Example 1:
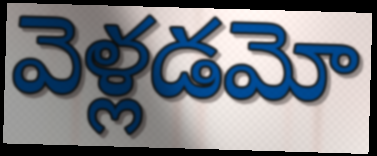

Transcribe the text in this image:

వెళ్లడమో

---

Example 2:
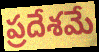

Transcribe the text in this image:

ప్రదేశమే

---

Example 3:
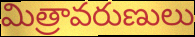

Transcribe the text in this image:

మిత్రావరుణులు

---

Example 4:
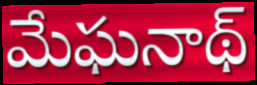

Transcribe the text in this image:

మేఘనాథ్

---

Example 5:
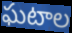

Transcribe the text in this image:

ఘటాల